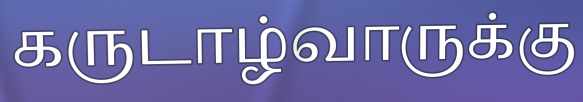
கருடாழ்வாருக்கு